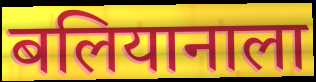
बलियानाला